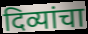
दिव्यांचा